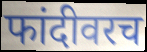
फांदीवरच